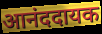
आनंददायक